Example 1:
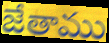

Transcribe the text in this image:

జేతాము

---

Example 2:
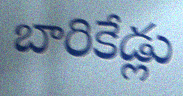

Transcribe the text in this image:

బారికేడ్లు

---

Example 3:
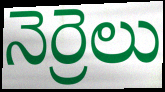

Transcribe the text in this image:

నెర్రెలు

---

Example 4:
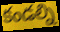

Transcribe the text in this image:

కండల్ని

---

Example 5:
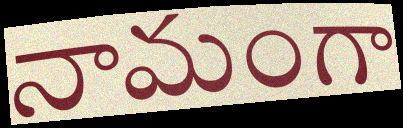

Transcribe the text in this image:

నామంగా